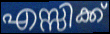
എസ്സിക്ക്